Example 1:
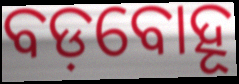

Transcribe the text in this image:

ବଡ଼ବୋହୂ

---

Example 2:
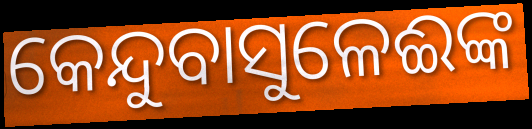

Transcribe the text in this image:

କେନ୍ଦୁବାସୁଳେଈଙ୍କ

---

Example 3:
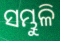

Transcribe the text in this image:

ସମ୍ଭୁଳି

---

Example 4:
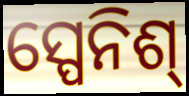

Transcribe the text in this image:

ସ୍ପେନିଶ୍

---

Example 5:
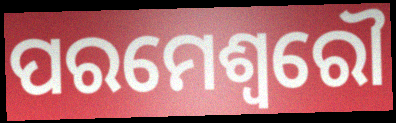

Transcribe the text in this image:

ପରମେଶ୍ଵରୌ